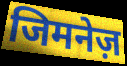
जिमनेज़